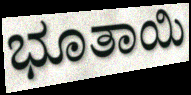
ಭೂತಾಯಿ